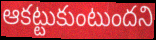
ఆకట్టుకుంటుందని